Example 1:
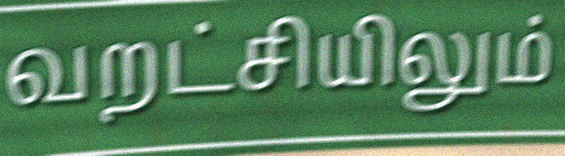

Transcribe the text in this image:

வறட்சியிலும்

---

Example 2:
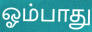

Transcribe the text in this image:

ஓம்பாது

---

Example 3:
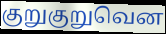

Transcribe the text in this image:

குறுகுறுவென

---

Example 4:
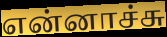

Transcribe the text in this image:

என்னாச்சு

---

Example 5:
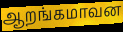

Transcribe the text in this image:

ஆறங்கமாவன